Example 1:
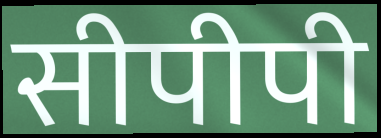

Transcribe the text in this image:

सीपीपी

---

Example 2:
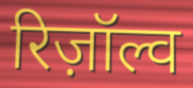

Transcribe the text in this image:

रिज़ॉल्व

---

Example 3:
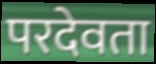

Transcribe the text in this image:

परदेवता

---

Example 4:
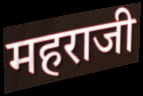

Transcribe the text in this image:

महराजी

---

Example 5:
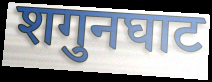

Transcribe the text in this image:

शगुनघाट